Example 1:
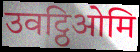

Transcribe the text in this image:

उवट्ठिओमि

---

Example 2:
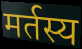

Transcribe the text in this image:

मर्तस्य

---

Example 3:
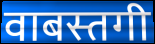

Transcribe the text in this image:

वाबस्तगी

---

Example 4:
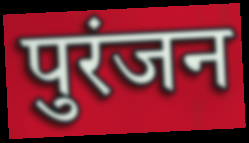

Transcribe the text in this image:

पुरंजन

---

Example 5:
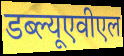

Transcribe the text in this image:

डब्ल्यूएवीएल